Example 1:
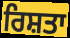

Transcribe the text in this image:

ਰਿਸ਼ਤਾ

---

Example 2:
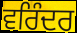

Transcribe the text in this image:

ਵਰਿੰਦਰ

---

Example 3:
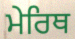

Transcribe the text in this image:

ਮੇਰਿਥ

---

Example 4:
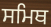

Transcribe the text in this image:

ਸਮਿਥ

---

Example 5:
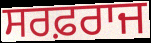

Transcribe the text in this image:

ਸਰਫ਼ਰਾਜ